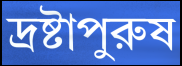
দ্রষ্টাপুরুষ